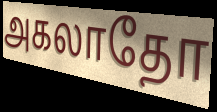
அகலாதோ